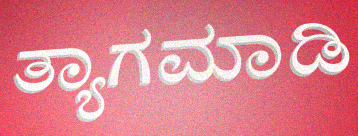
ತ್ಯಾಗಮಾಡಿ